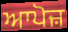
ਆਪੋਜ਼